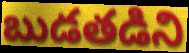
బుడతడిని